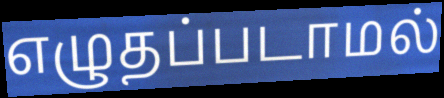
எழுதப்படாமல்